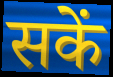
सकें